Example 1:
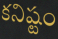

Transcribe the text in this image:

కనిష్టం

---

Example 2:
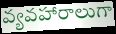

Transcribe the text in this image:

వ్యవహారాలుగా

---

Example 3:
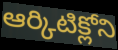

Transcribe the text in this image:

ఆర్కిటిక్లోని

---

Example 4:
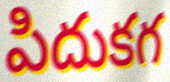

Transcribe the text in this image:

పిదుకగ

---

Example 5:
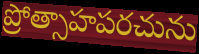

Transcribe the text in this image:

ప్రోత్సాహపరచును